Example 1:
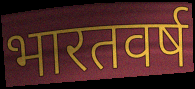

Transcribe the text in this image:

भारतवर्ष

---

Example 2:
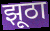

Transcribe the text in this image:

झूठा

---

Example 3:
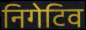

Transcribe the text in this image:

निगेटिव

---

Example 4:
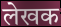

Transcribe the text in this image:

लेखक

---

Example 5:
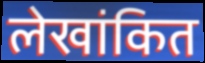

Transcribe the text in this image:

लेखांकित